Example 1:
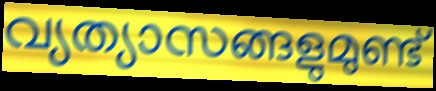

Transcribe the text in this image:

വ്യത്യാസങ്ങളുമുണ്ട്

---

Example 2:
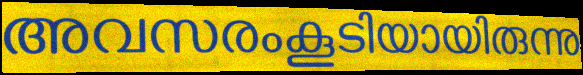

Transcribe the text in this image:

അവസരംകൂടിയായിരുന്നു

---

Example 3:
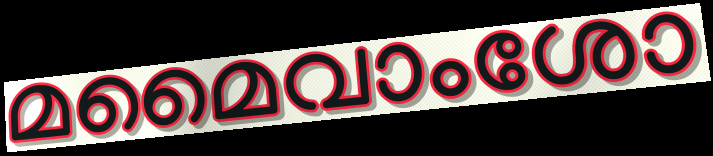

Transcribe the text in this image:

മമൈവാംശോ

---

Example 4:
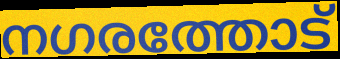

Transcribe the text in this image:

നഗരത്തോട്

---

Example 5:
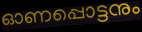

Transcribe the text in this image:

ഓണപ്പൊട്ടനും